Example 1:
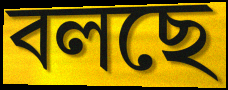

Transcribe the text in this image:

বলছে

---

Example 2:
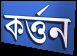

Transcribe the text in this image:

কর্ত্তন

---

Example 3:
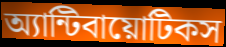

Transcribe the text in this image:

অ্যান্টিবায়োটিকস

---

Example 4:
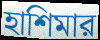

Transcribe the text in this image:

হাশিমার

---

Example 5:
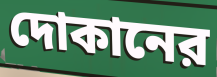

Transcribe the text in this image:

দোকানের